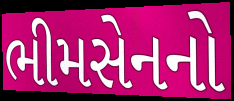
ભીમસેનનો